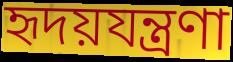
হৃদয়যন্ত্রণা